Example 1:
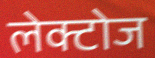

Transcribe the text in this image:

लेक्टोज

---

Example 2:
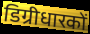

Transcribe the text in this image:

डिग्रीधारकों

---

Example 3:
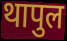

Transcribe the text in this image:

थापुल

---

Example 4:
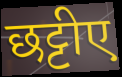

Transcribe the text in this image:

छट्टीए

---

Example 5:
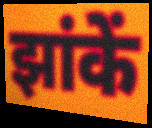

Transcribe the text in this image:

झांकें